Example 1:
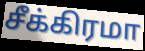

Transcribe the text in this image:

சீக்கிரமா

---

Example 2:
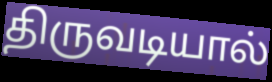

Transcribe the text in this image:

திருவடியால்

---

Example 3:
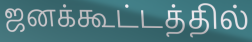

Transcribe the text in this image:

ஜனக்கூட்டத்தில்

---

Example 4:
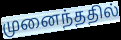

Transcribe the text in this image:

முனைந்ததில்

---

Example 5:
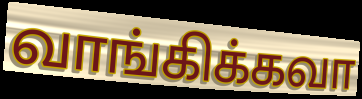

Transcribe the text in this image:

வாங்கிக்கவா